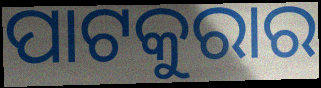
ପାଟକୁରାର